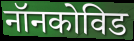
नॉनकोविड